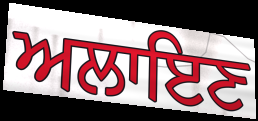
ਅਲਾਇਣ